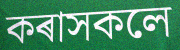
কৰাসকলে